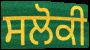
ਸਲੋਕੀ